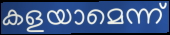
കളയാമെന്ന്